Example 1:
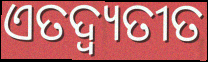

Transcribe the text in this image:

ଏତଦ୍ବ୍ୟତୀତ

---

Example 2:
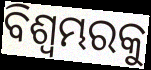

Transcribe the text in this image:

ବିଶ୍ୱମ୍ଭରକୁ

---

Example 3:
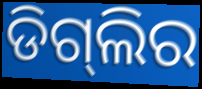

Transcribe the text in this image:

ଡିଗ୍‌ଲିର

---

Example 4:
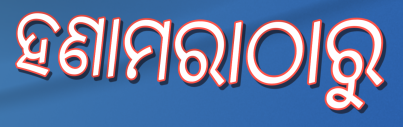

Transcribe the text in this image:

ହଣାମରାଠାରୁ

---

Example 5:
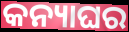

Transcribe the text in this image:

କନ୍ୟାଘର